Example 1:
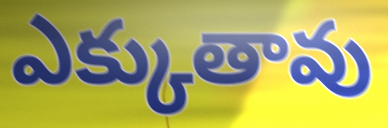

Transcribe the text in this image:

ఎక్కుతావు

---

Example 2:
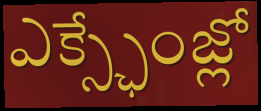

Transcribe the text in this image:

ఎక్స్ఛేంజ్లో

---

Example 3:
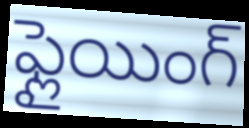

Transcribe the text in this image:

ఫ్లైయింగ్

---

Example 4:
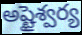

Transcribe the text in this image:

అష్టైశ్వర్య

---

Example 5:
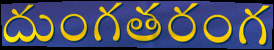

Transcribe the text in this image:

దుంగతరంగ